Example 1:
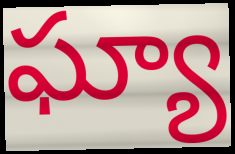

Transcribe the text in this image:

ఘ్యా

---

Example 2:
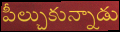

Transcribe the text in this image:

పీల్చుకున్నాడు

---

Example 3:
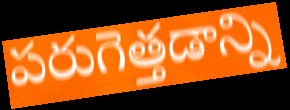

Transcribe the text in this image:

పరుగెత్తడాన్ని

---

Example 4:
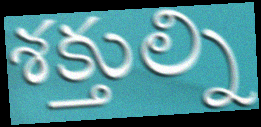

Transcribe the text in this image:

శక్తుల్ని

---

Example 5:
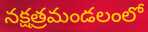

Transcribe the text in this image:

నక్షత్రమండలంలో